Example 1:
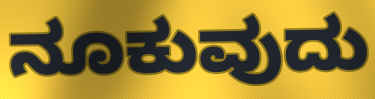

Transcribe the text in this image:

ನೂಕುವುದು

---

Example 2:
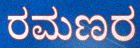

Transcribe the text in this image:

ರಮಣರ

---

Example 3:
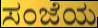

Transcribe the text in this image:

ಸಂಜೆಯ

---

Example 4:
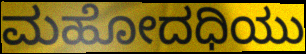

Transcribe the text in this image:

ಮಹೋದಧಿಯು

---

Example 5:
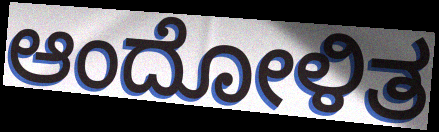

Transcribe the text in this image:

ಆಂದೋಳಿತ